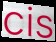
cis